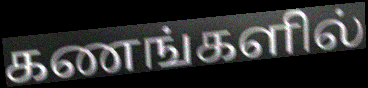
கணங்களில்